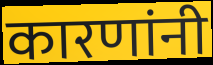
कारणांनी